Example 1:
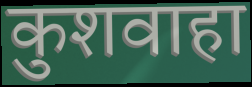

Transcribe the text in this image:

कुशवाहा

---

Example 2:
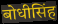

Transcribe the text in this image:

बोधीसिंह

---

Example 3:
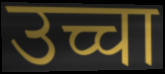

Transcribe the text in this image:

उच्चा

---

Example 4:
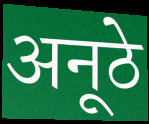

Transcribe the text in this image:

अनूठे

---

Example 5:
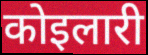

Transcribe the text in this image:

कोइलारी